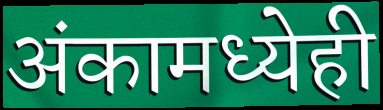
अंकामध्येही